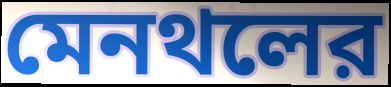
মেনথলের